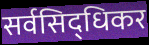
सर्वसिद्धिकर